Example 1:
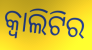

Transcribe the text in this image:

କ୍ୱାଲିଟିର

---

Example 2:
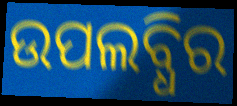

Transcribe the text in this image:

ଉପଲବ୍ଧିର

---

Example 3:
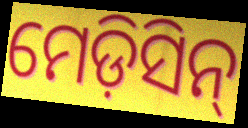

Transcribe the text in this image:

ମେଡ଼ିସିନ୍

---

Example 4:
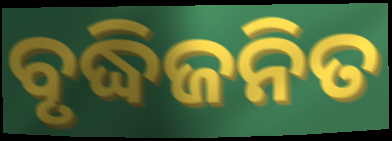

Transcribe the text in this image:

ବୃଦ୍ଧିଜନିତ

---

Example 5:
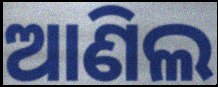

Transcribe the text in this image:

ଆଣିଲ